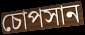
চোপসান